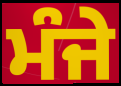
ਮੰਜੇ